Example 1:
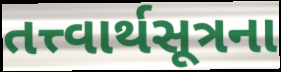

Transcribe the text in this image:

તત્ત્વાર્થસૂત્રના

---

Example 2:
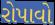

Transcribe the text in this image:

રોપાવો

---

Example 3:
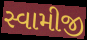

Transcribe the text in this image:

સ્વામીજી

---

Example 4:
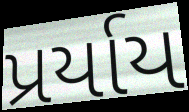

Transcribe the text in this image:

પ્રર્યાય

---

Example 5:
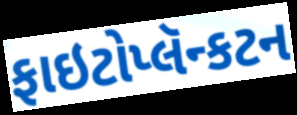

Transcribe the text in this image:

ફાઇટોપ્લૅન્કટન